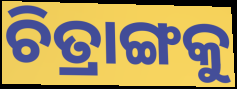
ଚିତ୍ରାଙ୍ଗକୁ